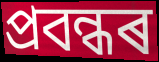
প্ৰবন্ধৰ